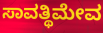
ಸಾವತ್ಥಿಮೇವ